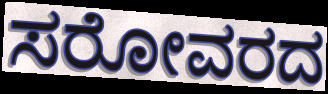
ಸರೋವರದ